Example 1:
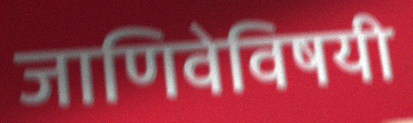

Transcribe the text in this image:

जाणिवेविषयी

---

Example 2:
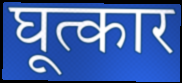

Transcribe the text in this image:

घूत्कार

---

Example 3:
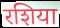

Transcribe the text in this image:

रशिया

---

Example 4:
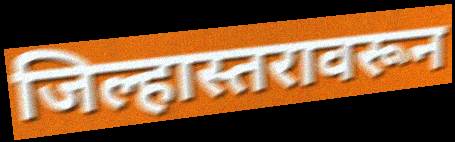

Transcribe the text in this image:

जिल्हास्तरावरून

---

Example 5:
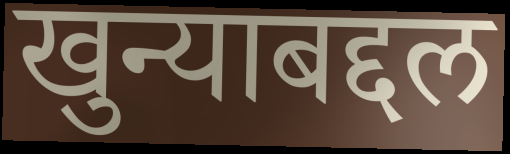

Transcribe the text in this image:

खुन्याबद्दल